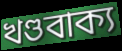
খণ্ডবাক্য